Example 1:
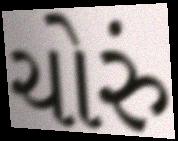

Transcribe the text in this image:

ચોરું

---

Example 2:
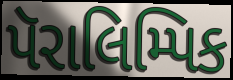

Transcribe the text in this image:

પૅરાલિમ્પિક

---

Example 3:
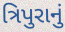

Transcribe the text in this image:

ત્રિપુરાનું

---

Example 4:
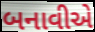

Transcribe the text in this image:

બનાવીએ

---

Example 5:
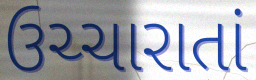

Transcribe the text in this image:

ઉચ્ચારાતાં